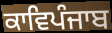
ਕਾਵਿਪੰਜਾਬ